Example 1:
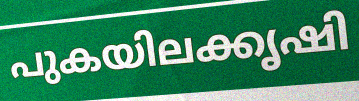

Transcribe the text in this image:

പുകയിലക്കൃഷി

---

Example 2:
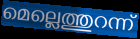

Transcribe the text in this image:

മെല്ലെത്തുറന്ന്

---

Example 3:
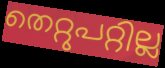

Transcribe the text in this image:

തെറ്റുപറ്റില്ല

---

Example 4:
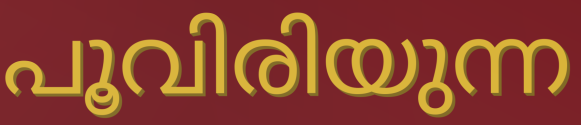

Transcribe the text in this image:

പൂവിരിയുന്ന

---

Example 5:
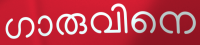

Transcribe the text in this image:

ഗാരുവിനെ